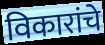
विकारांचे